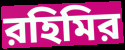
রহিমির